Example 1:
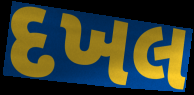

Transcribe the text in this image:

દખલ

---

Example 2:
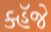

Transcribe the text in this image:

ક્હૅજે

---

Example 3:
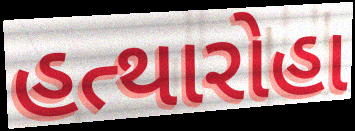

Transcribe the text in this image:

હત્થારોહા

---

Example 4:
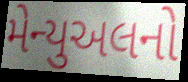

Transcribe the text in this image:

મેન્યુઅલનો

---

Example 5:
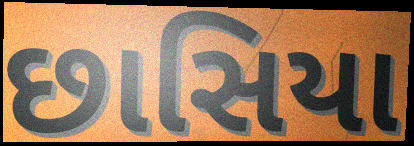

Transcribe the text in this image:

છાસિયા